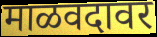
माळवदावर